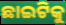
ଛାଇଟିକୁ